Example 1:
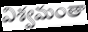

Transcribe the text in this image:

విశ్వమంతా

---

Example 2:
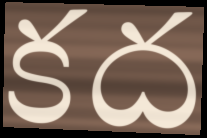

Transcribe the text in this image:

కద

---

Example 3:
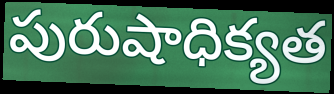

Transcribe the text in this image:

పురుషాధిక్యత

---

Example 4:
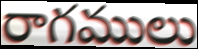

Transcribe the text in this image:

రాగములు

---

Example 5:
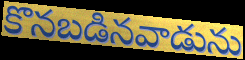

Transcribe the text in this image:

కొనబడినవాడును